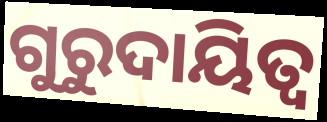
ଗୁରୁଦାୟିତ୍ଵ